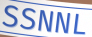
SSNNL